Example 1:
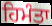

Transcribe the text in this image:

ਹਿਮੰਤਾ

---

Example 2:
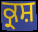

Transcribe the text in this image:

ਕ੍ਰਸ਼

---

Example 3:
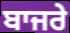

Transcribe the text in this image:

ਬਾਜਰੇ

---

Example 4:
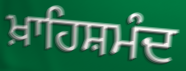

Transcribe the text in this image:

ਖ਼ਾਹਿਸ਼ਮੰਦ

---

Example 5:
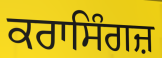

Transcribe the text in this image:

ਕਰਾਸਿੰਗਜ਼